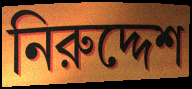
নিরুদ্দেশ